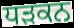
ਧੜਕਨ